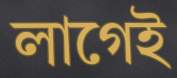
লাগেই